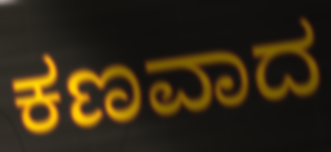
ಕಣವಾದ